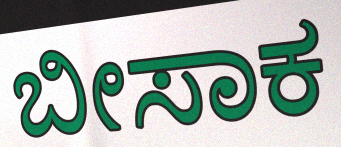
ಬೀಸಾಕ